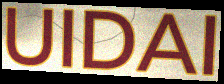
UIDAI